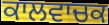
ਕਾਲਵਾਚਕ